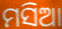
ମସିଆ